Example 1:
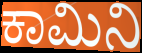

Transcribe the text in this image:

ಕಾಮಿನಿ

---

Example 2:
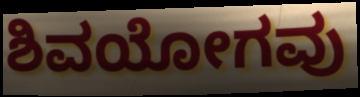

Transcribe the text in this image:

ಶಿವಯೋಗವು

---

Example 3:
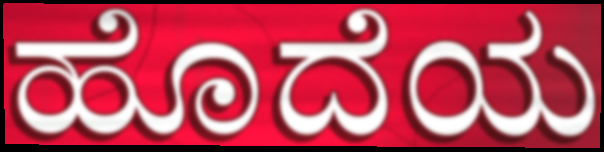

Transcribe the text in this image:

ಹೊದೆಯ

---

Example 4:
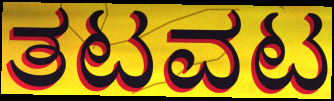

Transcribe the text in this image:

ತಟವಟ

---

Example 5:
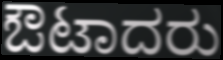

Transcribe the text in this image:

ಔಟಾದರು